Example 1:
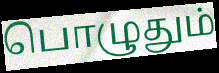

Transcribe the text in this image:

பொழுதும்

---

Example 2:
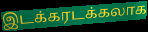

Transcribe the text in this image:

இடக்கரடக்கலாக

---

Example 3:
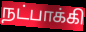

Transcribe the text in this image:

நட்பாக்கி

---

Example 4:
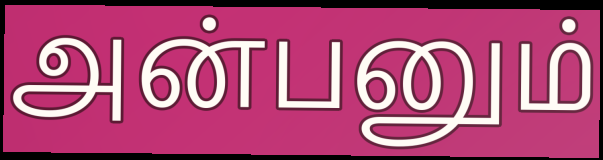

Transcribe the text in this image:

அன்பனும்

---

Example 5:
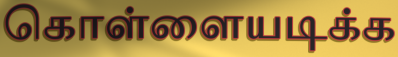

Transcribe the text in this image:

கொள்ளையடிக்க